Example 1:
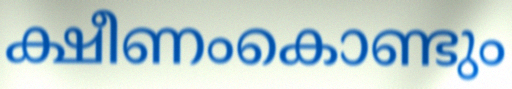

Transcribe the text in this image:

ക്ഷീണംകൊണ്ടും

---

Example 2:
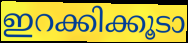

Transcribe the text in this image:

ഇറക്കിക്കൂടാ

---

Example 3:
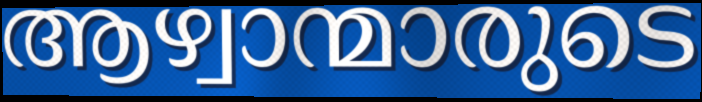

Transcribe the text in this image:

ആഴ്വാന്മാരുടെ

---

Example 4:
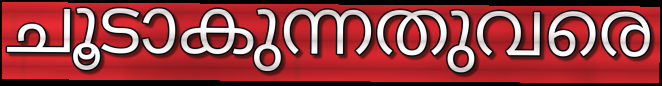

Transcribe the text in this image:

ചൂടാകുന്നതുവരെ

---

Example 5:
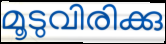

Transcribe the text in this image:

മൂടുവിരിക്കു